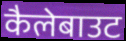
कैलेबाउट